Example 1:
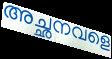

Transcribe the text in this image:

അച്ഛനവളെ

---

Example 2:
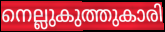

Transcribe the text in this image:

നെല്ലുകുത്തുകാരി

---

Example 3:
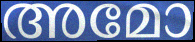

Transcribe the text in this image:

അമോ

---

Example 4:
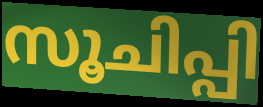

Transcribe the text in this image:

സൂചിപ്പി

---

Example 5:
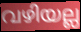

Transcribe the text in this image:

വഴിയല്ല